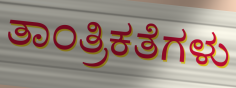
ತಾಂತ್ರಿಕತೆಗಳು